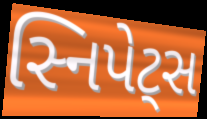
સ્નિપેટ્સ